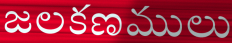
జలకణములు